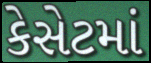
કેસેટમાં